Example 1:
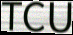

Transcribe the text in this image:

TCU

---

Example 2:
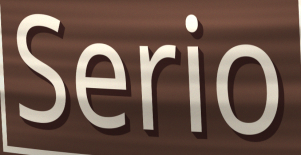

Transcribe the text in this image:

Serio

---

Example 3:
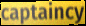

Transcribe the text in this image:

captaincy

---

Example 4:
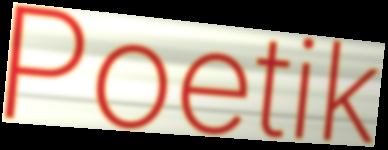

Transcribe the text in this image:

Poetik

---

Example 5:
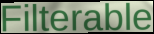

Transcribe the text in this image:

Filterable